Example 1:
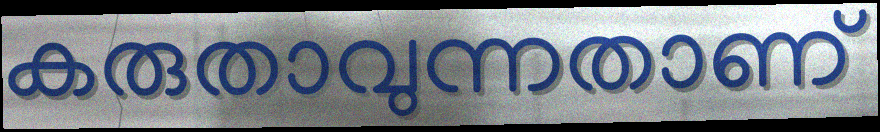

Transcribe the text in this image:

കരുതാവുന്നതാണ്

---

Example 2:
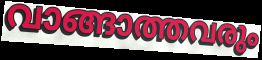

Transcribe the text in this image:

വാങ്ങാത്തവരും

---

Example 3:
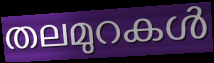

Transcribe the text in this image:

തലമുറകൾ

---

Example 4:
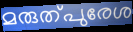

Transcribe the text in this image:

മരുത്പുരേശ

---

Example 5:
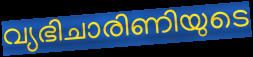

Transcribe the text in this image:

വ്യഭിചാരിണിയുടെ